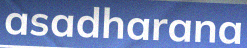
asadharana